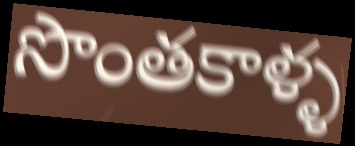
సొంతకాళ్ళ